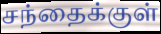
சந்தைக்குள்